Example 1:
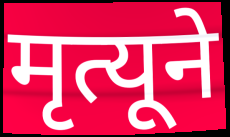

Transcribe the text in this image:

मृत्यूने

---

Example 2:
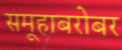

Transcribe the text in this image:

समूहाबरोबर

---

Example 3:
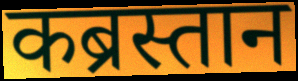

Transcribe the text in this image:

कब्रस्तान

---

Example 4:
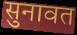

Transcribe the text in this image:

सुनावत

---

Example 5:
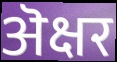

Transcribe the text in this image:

ऄक्षर